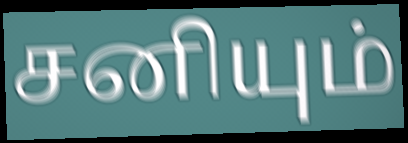
சனியும்